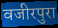
वजीरपुरा